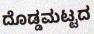
ದೊಡ್ಡಮಟ್ಟದ